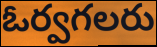
ఓర్వగలరు